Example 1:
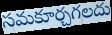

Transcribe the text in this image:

సమకూర్చగలదు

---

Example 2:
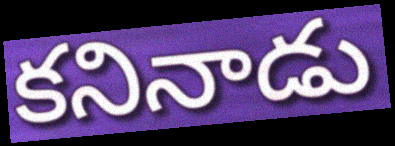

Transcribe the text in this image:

కనినాడు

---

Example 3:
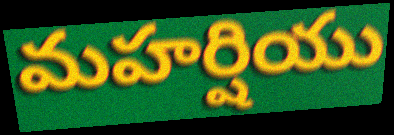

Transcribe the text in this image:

మహర్షియు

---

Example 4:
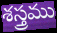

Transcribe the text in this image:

శస్త్రము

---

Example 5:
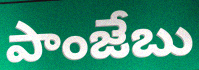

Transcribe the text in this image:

పాంజేబు